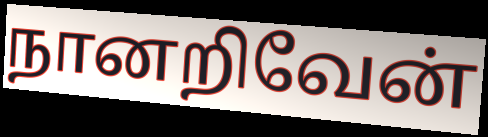
நானறிவேன்